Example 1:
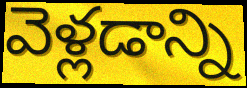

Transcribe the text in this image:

వెళ్లడాన్ని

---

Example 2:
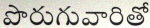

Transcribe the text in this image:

పొరుగువారితో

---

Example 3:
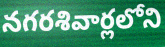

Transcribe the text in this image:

నగరశివార్లలోని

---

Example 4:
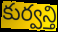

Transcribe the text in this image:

కుర్వన్తి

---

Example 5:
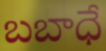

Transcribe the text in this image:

బబాధే